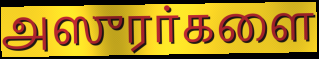
அஸுரர்களை